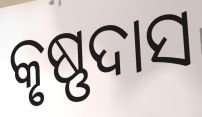
କୃଷ୍ଣଦାସ